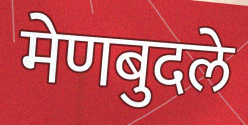
मेणबुदले